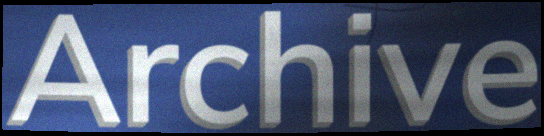
Archive